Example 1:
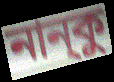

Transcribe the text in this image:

নান্‌কু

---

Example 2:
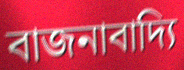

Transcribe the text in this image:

বাজনাবাদ্যি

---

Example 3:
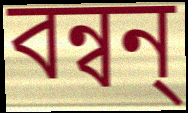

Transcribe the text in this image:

বন্বন্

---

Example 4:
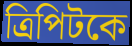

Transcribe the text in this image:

ত্রিপিটকে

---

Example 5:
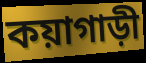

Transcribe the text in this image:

কয়াগাড়ী